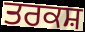
ਤਰਕਸ਼